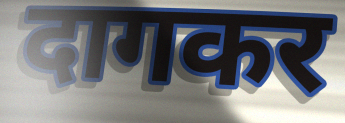
दागकर